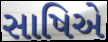
સાષિએ